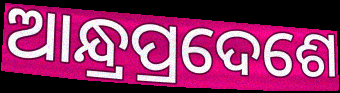
ଆନ୍ଧ୍ରପ୍ରଦେଶେ